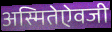
अस्मितेऐवजी